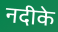
नदीके